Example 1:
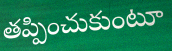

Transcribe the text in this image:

తప్పించుకుంటూ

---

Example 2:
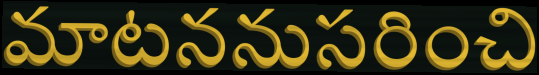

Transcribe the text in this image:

మాటననుసరించి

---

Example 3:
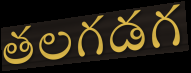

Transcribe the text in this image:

తలగడగ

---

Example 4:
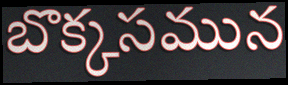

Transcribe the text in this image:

బొక్కసమున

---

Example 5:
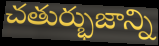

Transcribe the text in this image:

చతుర్భుజాన్ని